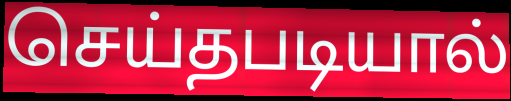
செய்தபடியால்